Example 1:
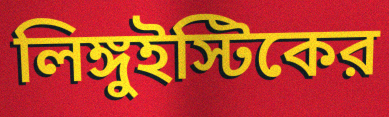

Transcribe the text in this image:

লিঙ্গুইস্টিকের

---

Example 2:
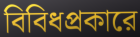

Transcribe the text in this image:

বিবিধপ্রকারে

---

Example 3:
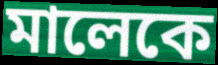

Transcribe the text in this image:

মালেকে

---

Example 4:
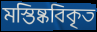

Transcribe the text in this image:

মস্তিষ্কবিকৃত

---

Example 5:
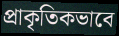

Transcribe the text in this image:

প্রাকৃতিকভাবে